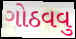
ગોઠવવુ